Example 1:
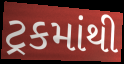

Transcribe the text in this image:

ટ્રકમાંથી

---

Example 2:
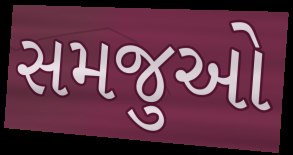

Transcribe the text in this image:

સમજુઓ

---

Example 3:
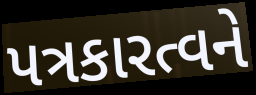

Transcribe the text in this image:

પત્રકારત્વને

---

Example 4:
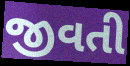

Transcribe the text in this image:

જીવતી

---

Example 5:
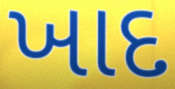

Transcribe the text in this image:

ખાદ